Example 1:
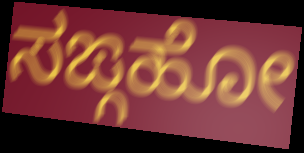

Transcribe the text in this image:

ಸಙ್ಗಹೋ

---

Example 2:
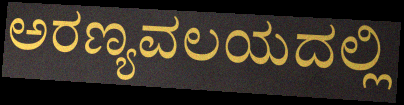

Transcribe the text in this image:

ಅರಣ್ಯವಲಯದಲ್ಲಿ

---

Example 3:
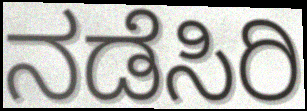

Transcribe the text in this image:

ನಡೆಸಿರಿ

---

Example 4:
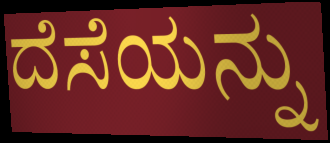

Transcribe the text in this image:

ದೆಸೆಯನ್ನು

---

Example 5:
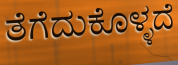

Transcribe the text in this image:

ತೆಗೆದುಕೊಳ್ಳದೆ